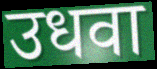
उधवा